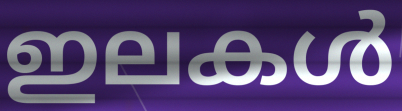
ഇലകൾ